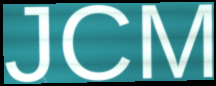
JCM